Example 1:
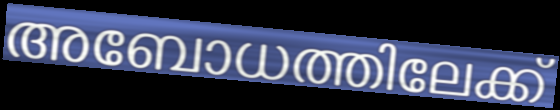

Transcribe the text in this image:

അബോധത്തിലേക്ക്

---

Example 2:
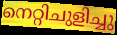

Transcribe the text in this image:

നെറ്റിചുളിച്ചു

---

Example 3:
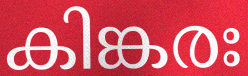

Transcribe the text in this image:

കിങ്കരഃ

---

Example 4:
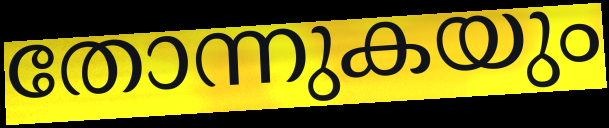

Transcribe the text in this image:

തോന്നുകയും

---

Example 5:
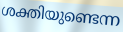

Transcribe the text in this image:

ശക്തിയുണ്ടെന്ന